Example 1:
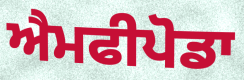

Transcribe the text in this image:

ਐਮਫੀਪੋਡਾ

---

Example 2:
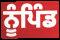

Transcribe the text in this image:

ਨੂੰਪਿੰਡ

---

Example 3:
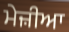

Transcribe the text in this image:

ਮੇਜ਼ੀਆ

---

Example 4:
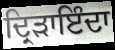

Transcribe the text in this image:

ਦ੍ਰਿੜਾਇੰਦਾ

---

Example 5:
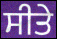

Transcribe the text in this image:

ਸੀਤੇ